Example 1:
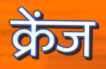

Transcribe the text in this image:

क्रेंज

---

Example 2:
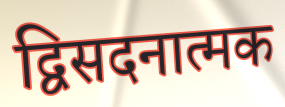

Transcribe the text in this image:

द्विसदनात्मक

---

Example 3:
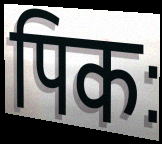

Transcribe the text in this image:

पिकः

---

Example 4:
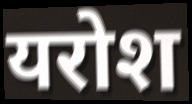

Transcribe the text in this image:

यरोश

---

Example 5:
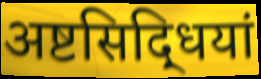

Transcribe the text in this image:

अष्टसिद्धियां